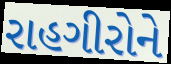
રાહગીરોને